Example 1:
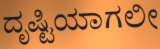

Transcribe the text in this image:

ದೃಷ್ಟಿಯಾಗಲೀ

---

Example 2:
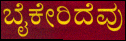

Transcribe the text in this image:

ಬೈಕೇರಿದೆವು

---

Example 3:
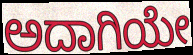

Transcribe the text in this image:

ಅದಾಗಿಯೇ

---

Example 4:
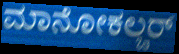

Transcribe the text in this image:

ಮಾನೋಕಲ್ಚರ್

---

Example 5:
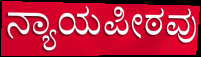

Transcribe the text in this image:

ನ್ಯಾಯಪೀಠವು